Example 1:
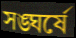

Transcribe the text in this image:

সঙ্ঘর্ষে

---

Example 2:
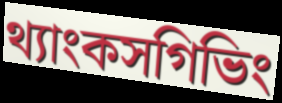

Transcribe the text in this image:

থ্যাংকসগিভিং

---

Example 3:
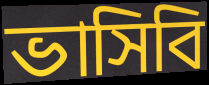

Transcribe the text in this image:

ভাসিবি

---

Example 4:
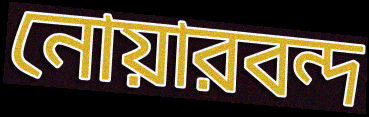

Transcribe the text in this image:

নোয়ারবন্দ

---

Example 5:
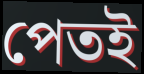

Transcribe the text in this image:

পেতই